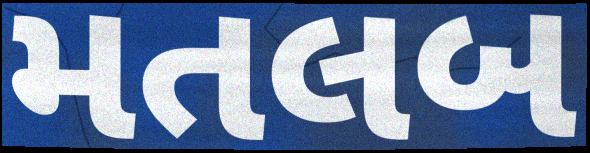
મતલબ